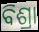
ବିଶ୍ରା